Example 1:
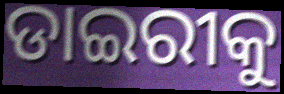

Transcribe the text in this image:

ଡାଇରୀକୁ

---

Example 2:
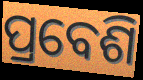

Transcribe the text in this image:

ପ୍ରବେଶି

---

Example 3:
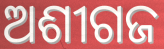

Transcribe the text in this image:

ଅଶୀଗଜ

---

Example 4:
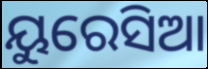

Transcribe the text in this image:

ୟୁରେସିଆ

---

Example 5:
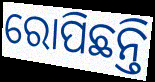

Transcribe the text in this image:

ରୋପିଛନ୍ତି